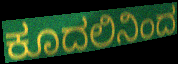
ಕೂದಲಿನಿಂದ